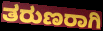
ತರುಣರಾಗಿ